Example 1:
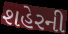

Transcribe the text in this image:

શહેરની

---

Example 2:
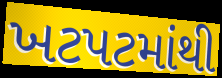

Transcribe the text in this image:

ખટપટમાંથી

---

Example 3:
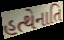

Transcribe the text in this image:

હત્થેનાતિ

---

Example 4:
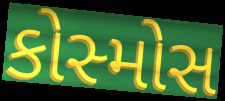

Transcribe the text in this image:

કોસ્મોસ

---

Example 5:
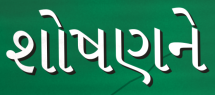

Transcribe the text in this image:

શોષણને